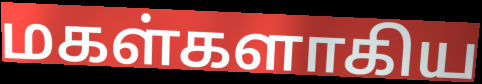
மகள்களாகிய